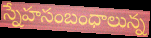
స్నేహసంబంధాలున్న